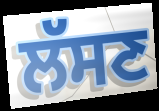
ਲੱਸਣ